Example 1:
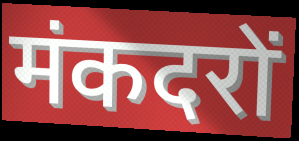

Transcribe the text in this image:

मंकदरों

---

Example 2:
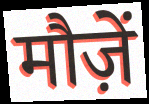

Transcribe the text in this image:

मौज़ें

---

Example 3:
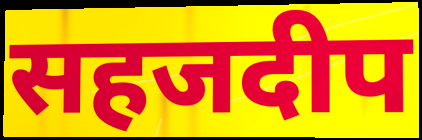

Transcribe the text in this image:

सहजदीप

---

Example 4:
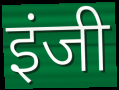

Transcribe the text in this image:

इंजी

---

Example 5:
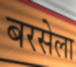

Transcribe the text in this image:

बरसेला